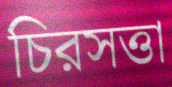
চিরসত্তা